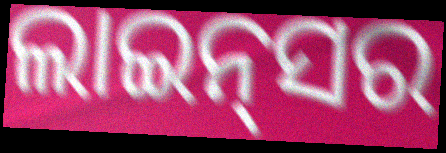
ଲାଇନ୍‌ସର